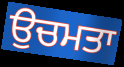
ਉਚਮਤਾ